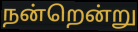
நன்றென்று